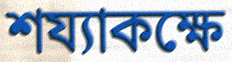
শয্যাকক্ষে